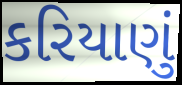
કરિયાણું